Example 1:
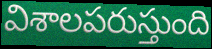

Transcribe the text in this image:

విశాలపరుస్తుంది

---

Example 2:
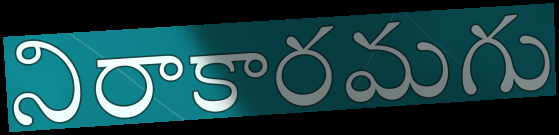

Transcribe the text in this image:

నిరాకారమగు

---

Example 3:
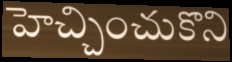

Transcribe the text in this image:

హెచ్చించుకొని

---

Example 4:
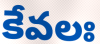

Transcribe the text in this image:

కేవలః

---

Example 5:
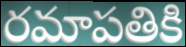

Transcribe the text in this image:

రమాపతికి